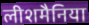
लीशमैनिया